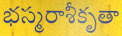
భస్మరాశీకృతా